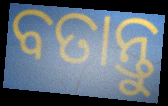
ବତାନ୍ତୁ